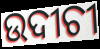
ଉଦୀଚୀ